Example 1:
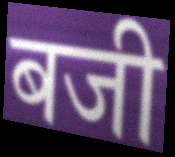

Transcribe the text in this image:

बजी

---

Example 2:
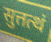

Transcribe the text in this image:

सुत्तत्थं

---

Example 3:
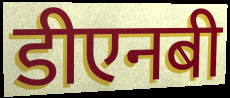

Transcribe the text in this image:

डीएनबी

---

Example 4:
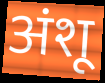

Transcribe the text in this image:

अंशू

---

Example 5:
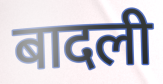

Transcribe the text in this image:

बादली